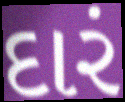
દારં